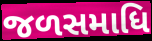
જળસમાધિ